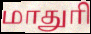
மாதுரி